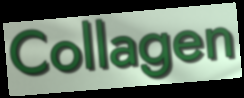
Collagen